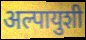
अल्पायुशी